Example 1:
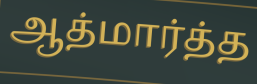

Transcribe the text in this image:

ஆத்மார்த்த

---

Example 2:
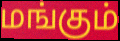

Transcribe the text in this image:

மங்கும்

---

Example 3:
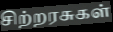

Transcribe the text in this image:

சிற்றரசுகள்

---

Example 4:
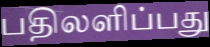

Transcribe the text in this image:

பதிலளிப்பது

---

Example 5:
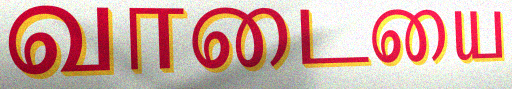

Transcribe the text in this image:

வாடையை